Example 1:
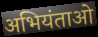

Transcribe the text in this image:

अभियंताओ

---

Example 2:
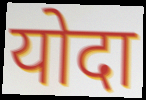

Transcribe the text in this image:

योदा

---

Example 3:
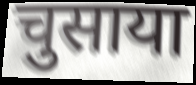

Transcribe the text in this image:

चुसाया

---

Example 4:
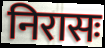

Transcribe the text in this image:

निरासः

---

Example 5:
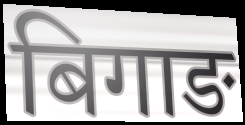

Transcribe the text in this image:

बिगाङ